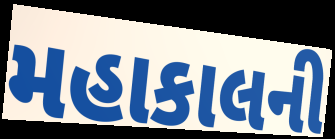
મહાકાલની